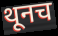
थूनच